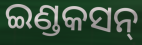
ଇଣ୍ଡକସନ୍